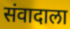
संवादाला